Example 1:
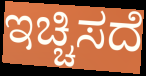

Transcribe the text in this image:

ಇಚ್ಚಿಸದೆ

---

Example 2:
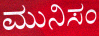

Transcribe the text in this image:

ಮುನಿಸಂ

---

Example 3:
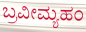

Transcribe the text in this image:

ಬ್ರವೀಮ್ಯಹಂ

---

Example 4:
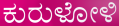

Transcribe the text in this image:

ಕುರುಳೋಳಿ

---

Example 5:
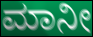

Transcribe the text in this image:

ಮಾನೀ